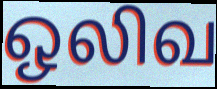
ஒலிவ